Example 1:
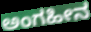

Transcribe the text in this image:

ಅಂಗಹೀನ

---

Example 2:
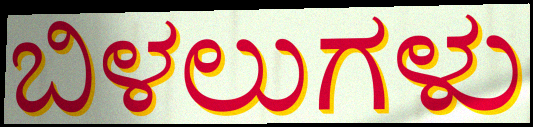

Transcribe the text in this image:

ಬಿಳಲುಗಳು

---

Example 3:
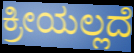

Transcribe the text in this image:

ಕ್ರೀಯಲ್ಲದೆ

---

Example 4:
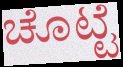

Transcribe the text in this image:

ಚೊಟ್ಟೆ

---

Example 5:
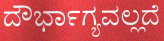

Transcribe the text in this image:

ದೌರ್ಭಾಗ್ಯವಲ್ಲದೆ